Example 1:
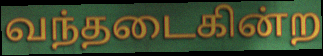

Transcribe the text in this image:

வந்தடைகின்ற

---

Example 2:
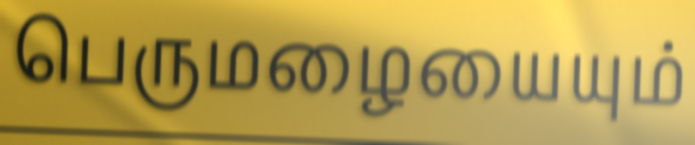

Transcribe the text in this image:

பெருமழையையும்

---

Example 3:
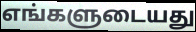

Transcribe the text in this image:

எங்களுடையது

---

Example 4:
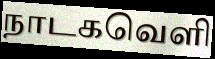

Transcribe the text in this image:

நாடகவெளி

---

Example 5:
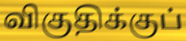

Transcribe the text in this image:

விகுதிக்குப்